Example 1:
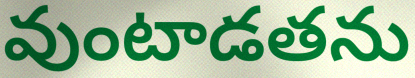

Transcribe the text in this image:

వుంటాడతను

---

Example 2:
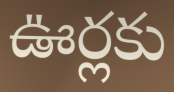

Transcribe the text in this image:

ఊర్లకు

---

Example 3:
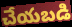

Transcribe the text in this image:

చేయబడి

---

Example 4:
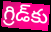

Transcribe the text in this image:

గ్రిడ్‌కు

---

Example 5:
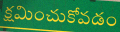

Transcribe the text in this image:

క్షమించుకోవడం